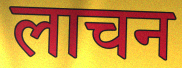
लाचन